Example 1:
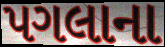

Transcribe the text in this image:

પગલાના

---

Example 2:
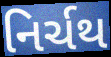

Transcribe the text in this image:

નિર્ચથ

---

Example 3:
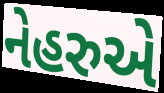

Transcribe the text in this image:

નેહરુએ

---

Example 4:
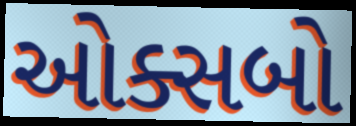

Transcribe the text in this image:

ઓક્સબો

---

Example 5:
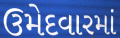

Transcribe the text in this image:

ઉમેદવારમાં